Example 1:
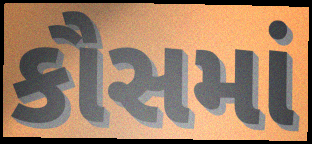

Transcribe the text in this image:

કૌસમાં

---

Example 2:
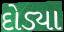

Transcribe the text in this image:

દોડ્યા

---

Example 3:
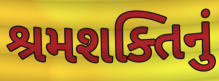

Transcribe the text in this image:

શ્રમશક્તિનું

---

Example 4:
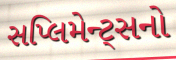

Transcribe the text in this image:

સપ્લિમેન્ટ્સનો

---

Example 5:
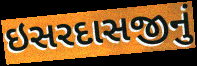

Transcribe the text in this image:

ઇસરદાસજીનું